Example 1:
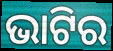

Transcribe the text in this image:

ଭାଟିର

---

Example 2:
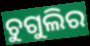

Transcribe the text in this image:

ଚୁଗୁଲିର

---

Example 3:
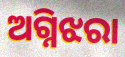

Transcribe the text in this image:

ଅଗ୍ନିଝରା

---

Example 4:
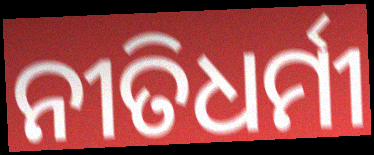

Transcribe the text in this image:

ନୀତିଧର୍ମୀ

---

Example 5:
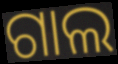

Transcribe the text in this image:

ଗାଲ